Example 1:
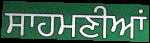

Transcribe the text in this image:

ਸਾਹਮਣੀਆਂ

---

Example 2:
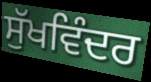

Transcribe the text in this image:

ਸੁੱਖਵਿੰਦਰ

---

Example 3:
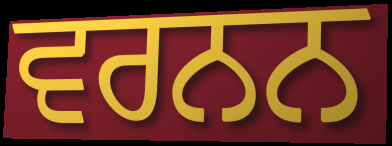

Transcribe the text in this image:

ਵਰਨਨ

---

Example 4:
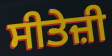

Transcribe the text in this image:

ਸੀਤੇਜ਼ੀ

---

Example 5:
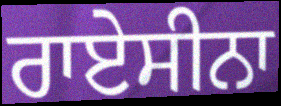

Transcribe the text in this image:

ਰਾਏਸੀਨਾ